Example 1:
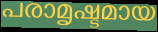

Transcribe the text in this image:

പരാമൃഷ്ടമായ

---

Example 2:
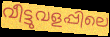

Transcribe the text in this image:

വീട്ടുവളപ്പിലെ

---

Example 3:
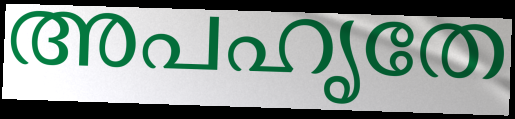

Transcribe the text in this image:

അപഹൃതേ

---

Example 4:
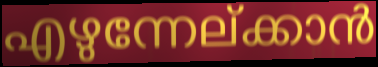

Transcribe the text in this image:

എഴുന്നേല്ക്കാൻ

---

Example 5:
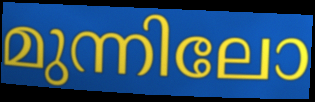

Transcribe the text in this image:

മുന്നിലോ